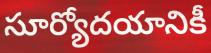
సూర్యోదయానికీ